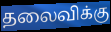
தலைவிக்கு